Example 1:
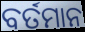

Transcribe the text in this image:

ବର୍ତମାନ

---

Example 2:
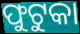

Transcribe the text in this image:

ଫୁଟୁକା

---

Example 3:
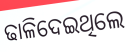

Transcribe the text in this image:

ଢାଳିଦେଇଥିଲେ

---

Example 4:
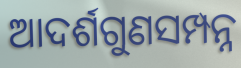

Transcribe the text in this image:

ଆଦର୍ଶଗୁଣସମ୍ପନ୍ନ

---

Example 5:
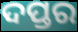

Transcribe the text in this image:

ଦପ୍ତର